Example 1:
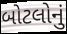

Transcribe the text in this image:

બોટલોનું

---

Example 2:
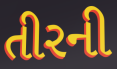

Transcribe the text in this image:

તીરની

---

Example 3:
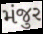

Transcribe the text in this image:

મંજુર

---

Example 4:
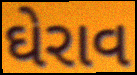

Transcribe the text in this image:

ઘેરાવ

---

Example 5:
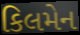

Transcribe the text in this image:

કિલમેન